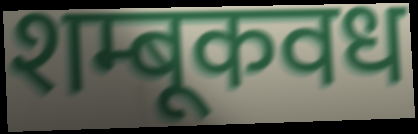
शम्बूकवध